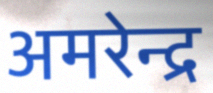
अमरेन्द्र